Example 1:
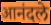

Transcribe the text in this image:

आनंदले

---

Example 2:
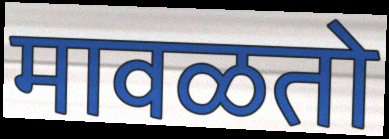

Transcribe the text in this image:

मावळतो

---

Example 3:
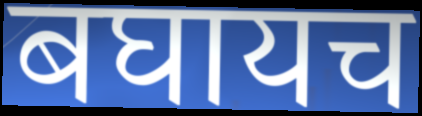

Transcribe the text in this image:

बघायच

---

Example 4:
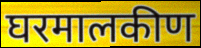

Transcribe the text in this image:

घरमालकीण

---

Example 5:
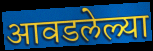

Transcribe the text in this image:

आवडलेल्या